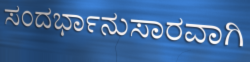
ಸಂದರ್ಭಾನುಸಾರವಾಗಿ